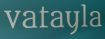
vatayla